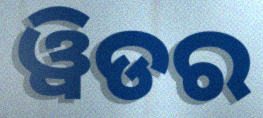
ୱିଡର